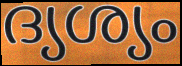
ദ്യശ്യം